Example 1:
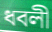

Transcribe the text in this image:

ধবলী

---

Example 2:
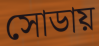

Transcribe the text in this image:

সোডায়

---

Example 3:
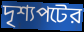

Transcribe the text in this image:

দৃশ্যপটের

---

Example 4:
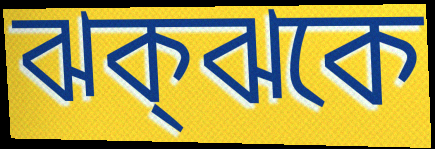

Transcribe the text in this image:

ঝক্‌ঝকে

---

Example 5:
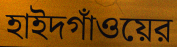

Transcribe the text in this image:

হাইদগাঁওয়ের